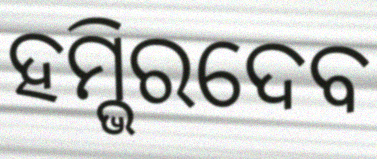
ହମ୍ଭିରଦେବ